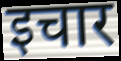
इचार